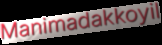
Manimadakkoyil